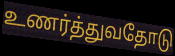
உணர்த்துவதோடு